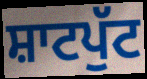
ਸ਼ਾਟਪੁੱਟ